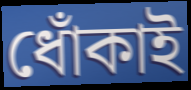
ধোঁকাই